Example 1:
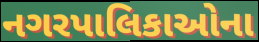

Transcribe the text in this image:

નગરપાલિકાઓના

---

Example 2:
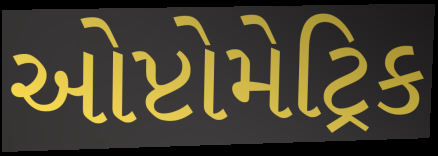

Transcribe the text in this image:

ઓપ્ટોમેટ્રિક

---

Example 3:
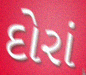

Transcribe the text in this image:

દોરાં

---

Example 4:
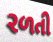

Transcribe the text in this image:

રળતી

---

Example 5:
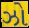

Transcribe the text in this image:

ઝો